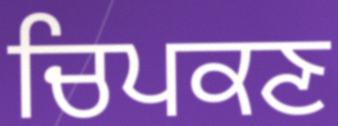
ਚਿਪਕਣ